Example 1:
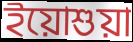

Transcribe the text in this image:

ইয়োশুয়া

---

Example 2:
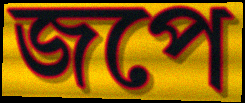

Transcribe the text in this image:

জপে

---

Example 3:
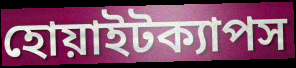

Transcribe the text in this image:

হোয়াইটক্যাপস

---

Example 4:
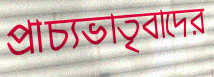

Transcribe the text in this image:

প্রাচ্যভাতৃবাদের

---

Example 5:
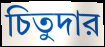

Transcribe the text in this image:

চিতুদার